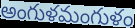
అంగుళమంగుళం